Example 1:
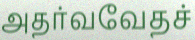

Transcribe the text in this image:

அதர்வவேதச்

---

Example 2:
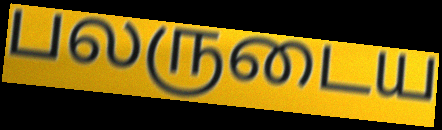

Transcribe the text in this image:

பலருடைய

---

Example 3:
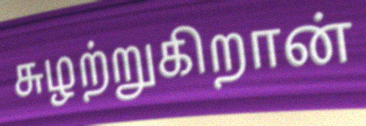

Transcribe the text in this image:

சுழற்றுகிறான்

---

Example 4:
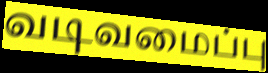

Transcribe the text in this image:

வடிவமைப்பு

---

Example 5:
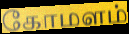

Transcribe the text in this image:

கோமளம்